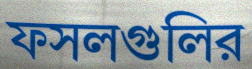
ফসলগুলির